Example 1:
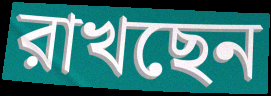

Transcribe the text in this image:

রাখছেন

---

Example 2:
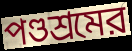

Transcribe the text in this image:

পণ্ডশ্রমের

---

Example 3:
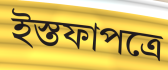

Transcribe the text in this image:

ইস্তফাপত্রে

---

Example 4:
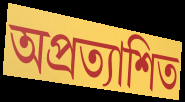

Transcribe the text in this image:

অপ্রত্যাশিত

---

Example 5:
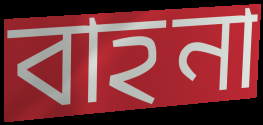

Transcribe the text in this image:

বাহনা